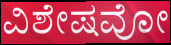
ವಿಶೇಷವೋ